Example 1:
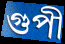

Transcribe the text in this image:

গুপী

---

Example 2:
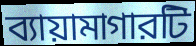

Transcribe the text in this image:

ব্যায়ামাগারটি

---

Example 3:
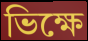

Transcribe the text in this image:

ভিক্ষে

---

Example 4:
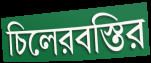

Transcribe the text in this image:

চিলেরবস্তির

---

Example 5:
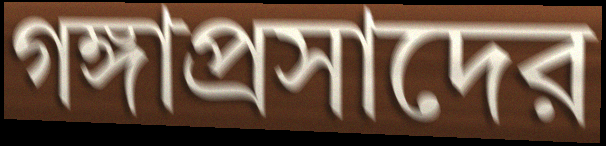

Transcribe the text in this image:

গঙ্গাপ্রসাদের